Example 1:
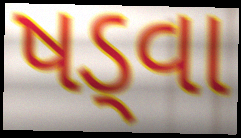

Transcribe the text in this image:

ષડ્વા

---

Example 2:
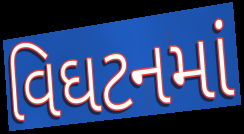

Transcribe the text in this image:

વિઘટનમાં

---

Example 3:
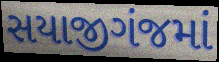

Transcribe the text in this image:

સયાજીગંજમાં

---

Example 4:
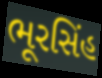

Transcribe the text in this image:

ભૂરસિંહ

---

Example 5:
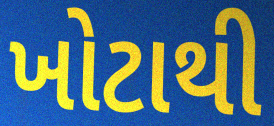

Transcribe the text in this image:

ખોટાથી